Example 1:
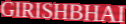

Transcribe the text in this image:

GIRISHBHAI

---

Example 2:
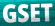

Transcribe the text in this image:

GSET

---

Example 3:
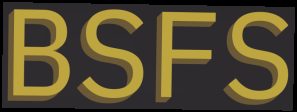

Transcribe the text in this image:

BSFS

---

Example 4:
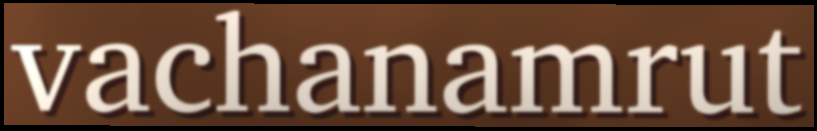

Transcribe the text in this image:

vachanamrut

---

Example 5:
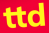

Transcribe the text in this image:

ttd